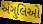
અંગુલિઓ